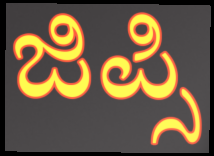
ಜಿಪ್ಸಿ